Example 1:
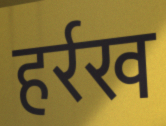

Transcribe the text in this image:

हर्रख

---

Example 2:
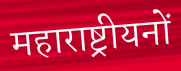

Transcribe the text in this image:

महाराष्ट्रीयनों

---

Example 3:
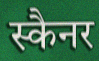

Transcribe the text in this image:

स्कैनर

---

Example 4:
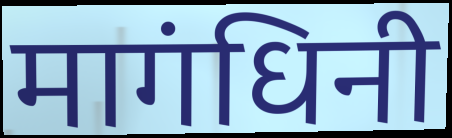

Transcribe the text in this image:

मागंधिनी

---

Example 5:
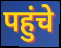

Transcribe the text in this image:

पहुंचे